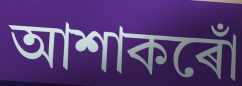
আশাকৰোঁ